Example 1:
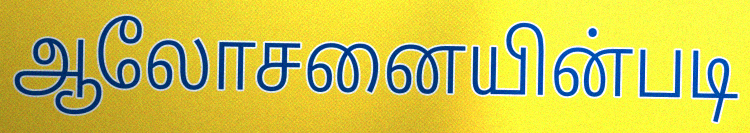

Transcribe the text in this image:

ஆலோசனையின்படி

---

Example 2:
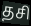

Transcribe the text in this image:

தசி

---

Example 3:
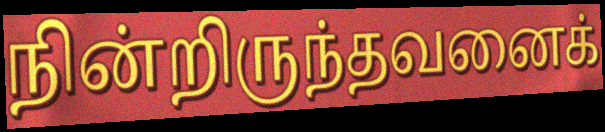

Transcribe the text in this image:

நின்றிருந்தவனைக்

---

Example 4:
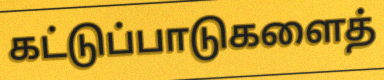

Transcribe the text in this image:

கட்டுப்பாடுகளைத்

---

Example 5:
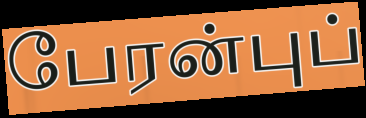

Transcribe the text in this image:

பேரன்புப்